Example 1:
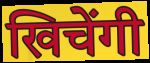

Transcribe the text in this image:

खिचेंगी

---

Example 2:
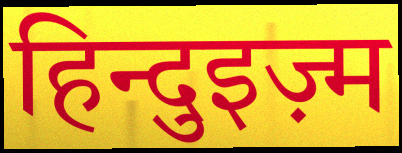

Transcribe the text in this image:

हिन्दुइज़्म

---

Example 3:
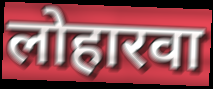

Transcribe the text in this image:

लोहारवा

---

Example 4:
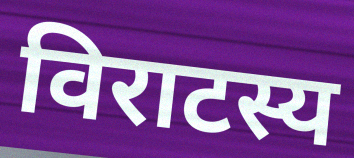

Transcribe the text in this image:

विराटस्य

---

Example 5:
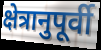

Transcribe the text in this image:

क्षेत्रानुपूर्वी